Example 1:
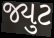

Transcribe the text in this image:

જ્યુટ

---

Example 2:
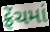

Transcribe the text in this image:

ફ્રેંચમાં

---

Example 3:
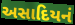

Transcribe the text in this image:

અસાદિયનં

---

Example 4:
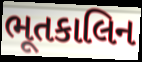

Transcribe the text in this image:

ભૂતકાલિન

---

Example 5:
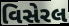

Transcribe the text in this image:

વિસેરલ